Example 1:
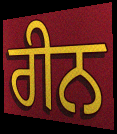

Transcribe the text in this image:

ਰੀਨ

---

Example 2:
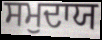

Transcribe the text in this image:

ਸਮੁਦਾਯ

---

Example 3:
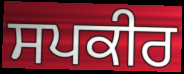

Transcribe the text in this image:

ਸਪਕੀਰ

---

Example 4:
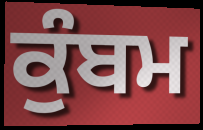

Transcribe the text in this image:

ਕੁੰਬਮ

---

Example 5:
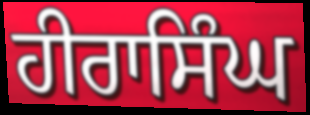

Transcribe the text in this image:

ਹੀਰਾਸਿੰਘ